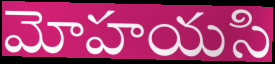
మోహయసి